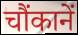
चौंकानें